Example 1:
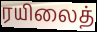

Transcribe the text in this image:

ரயிலைத்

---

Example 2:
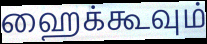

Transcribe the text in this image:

ஹைக்கூவும்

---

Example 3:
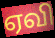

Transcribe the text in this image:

ஏவி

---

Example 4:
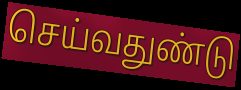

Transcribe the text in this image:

செய்வதுண்டு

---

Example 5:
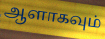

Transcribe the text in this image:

ஆளாகவும்